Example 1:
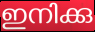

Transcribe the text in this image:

ഇനിക്കു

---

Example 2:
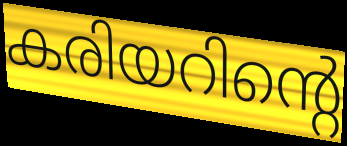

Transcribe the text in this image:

കരിയറിന്റെ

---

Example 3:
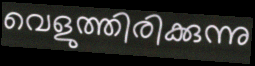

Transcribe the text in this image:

വെളുത്തിരിക്കുന്നു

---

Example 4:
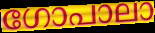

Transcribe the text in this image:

ഗോപാലാ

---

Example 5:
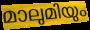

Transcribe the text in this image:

മാലുമിയും